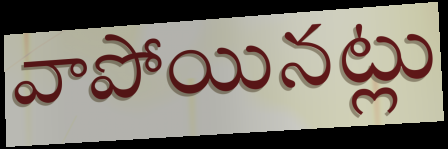
వాపోయినట్లు